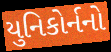
યુનિકોર્નનો